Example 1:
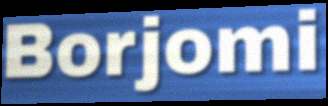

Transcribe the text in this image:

Borjomi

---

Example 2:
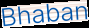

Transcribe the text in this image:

Bhaban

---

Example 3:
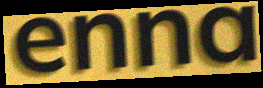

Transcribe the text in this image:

enna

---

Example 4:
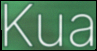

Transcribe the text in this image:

Kua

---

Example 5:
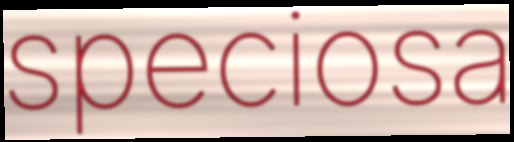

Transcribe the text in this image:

speciosa